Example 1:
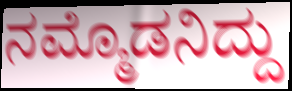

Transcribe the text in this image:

ನಮ್ಮೊಡನಿದ್ದು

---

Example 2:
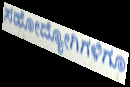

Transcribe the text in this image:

ಸಹೋದ್ಯೋಗಿಗಳಿಗೂ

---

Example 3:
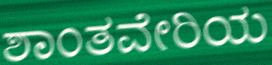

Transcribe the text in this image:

ಶಾಂತವೇರಿಯ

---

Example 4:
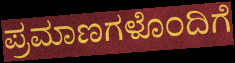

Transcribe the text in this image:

ಪ್ರಮಾಣಗಳೊಂದಿಗೆ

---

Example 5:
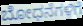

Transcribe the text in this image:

ಬೋಧನೆಗಳಿಗೆ